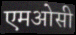
एमओसी